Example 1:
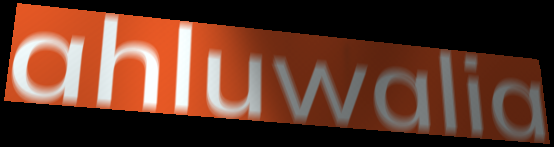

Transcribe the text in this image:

ahluwalia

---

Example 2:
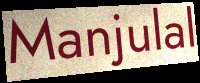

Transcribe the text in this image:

Manjulal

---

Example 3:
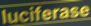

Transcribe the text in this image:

luciferase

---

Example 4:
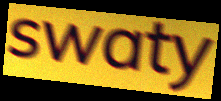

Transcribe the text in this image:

swaty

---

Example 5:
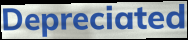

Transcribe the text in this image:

Depreciated